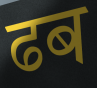
ढब